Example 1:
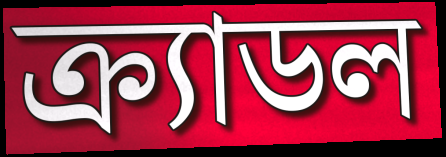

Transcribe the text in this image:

ক্র্যাডল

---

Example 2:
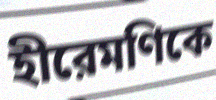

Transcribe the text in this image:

হীরেমণিকে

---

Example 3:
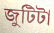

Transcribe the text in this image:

জুটিটা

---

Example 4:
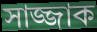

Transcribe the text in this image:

সাজ্জাক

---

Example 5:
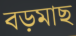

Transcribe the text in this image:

বড়মাছ